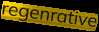
regenrative